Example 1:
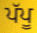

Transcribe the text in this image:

ਪੱਪੂ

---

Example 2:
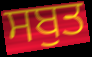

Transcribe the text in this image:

ਸਬੁਤ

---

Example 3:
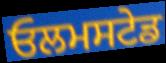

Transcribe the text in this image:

ਓਲਮਸਟੇਡ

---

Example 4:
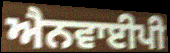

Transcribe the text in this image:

ਐਨਵਾਈਪੀ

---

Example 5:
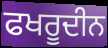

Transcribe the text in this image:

ਫਖਰੂਦੀਨ